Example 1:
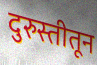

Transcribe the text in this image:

दुरुस्तीतून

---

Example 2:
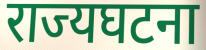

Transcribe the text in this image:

राज्यघटना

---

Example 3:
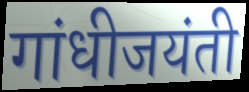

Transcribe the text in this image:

गांधीजयंती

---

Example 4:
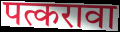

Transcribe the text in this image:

पत्करावा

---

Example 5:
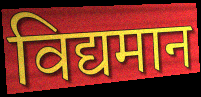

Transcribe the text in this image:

विद्यमान